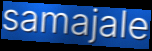
samajale